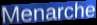
Menarche